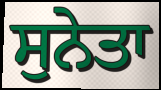
ਸੁਨੇਤਾ